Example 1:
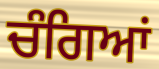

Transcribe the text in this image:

ਚੰਗਿਆਂ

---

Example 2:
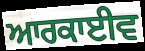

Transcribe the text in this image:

ਆਰਕਾਈਵ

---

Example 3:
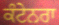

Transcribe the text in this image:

ਕੰਟੇਨਰਾ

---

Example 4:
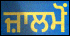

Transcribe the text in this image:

ਜ਼ਾਲਮੋਂ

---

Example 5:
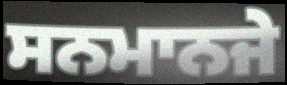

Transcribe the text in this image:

ਸਨਮਾਨਜੇ